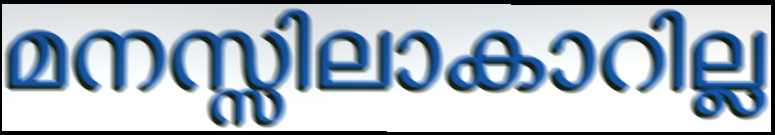
മനസ്സിലാകാറില്ല